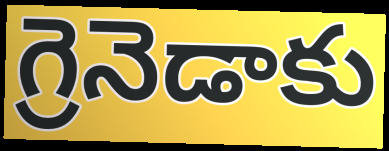
గ్రెనెడాకు